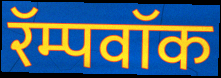
रॅम्पवॉक